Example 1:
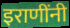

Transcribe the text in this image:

इराणींनी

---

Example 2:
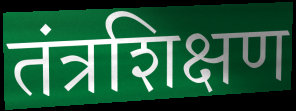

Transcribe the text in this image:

तंत्रशिक्षण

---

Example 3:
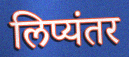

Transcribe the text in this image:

लिप्यंतर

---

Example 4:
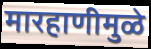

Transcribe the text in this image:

मारहाणीमुळे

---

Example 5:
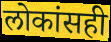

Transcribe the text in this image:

लोकांसही